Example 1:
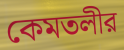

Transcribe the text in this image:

কেমতলীর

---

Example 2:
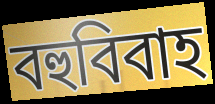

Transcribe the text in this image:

বহুবিবাহ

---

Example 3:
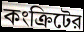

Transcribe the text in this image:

কংক্রিটের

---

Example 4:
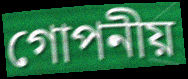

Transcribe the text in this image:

গোপনীয়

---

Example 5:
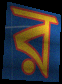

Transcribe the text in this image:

ব়